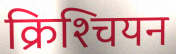
क्रिश्चियन